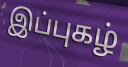
இப்புகழ்